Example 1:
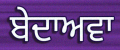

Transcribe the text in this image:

ਬੇਦਾਅਵਾ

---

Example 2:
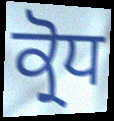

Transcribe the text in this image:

ਕ੍ਰੋਧ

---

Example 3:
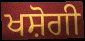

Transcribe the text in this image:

ਖਸ਼ੋਗੀ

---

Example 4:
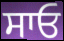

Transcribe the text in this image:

ਸਾਓ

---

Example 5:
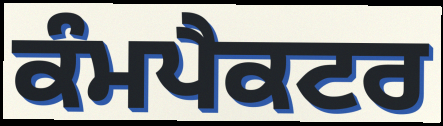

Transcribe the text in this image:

ਕੰਮਪੈਕਟਰ